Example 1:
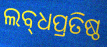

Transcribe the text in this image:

ଲବ୍‌ଧପ୍ରତିଷ୍ଠ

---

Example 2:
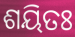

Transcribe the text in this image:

ଶୟିତଃ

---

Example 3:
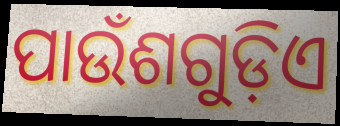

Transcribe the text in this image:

ପାଉଁଶଗୁଡ଼ିଏ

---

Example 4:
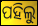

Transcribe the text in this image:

ପହିଲୁ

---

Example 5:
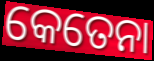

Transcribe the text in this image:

କେତେନା